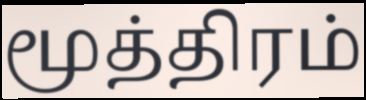
மூத்திரம்